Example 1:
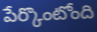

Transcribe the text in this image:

పేర్కొంటోంది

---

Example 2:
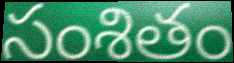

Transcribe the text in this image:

సంశితం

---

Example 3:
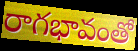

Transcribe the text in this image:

రాగభావంతో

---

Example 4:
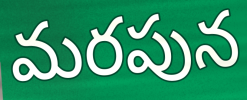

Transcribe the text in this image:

మరపున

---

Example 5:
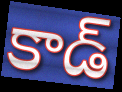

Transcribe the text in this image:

కాడ్